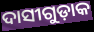
ଦାସୀଗୁଡ଼ାକ